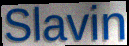
Slavin